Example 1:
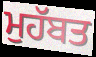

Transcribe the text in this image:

ਮੁਹੱਬਤ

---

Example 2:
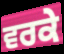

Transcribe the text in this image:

ਵਰਕੇ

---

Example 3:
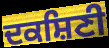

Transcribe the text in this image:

ਦਕਸ਼ਿਣੀ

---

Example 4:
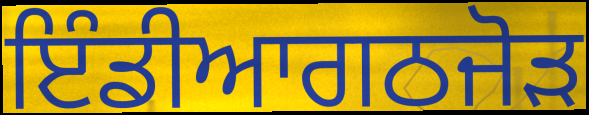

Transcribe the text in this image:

ਇੰਡੀਆਗਠਜੋੜ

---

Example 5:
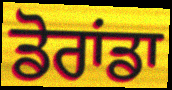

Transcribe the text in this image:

ਡੋਰਾਂਡਾ